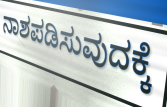
ನಾಶಪಡಿಸುವುದಕ್ಕೆ